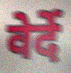
वेर्दे